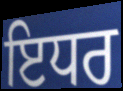
ਇਧਰ